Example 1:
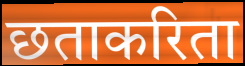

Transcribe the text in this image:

छताकरिता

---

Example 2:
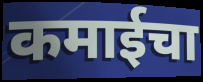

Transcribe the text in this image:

कमाईचा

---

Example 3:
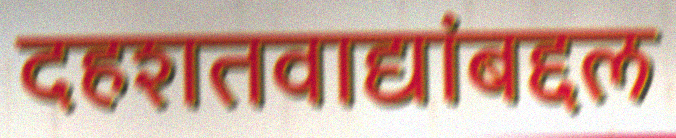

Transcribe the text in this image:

दहशतवाद्यांबद्दल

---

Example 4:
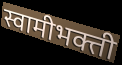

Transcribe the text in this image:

स्वामीभक्ती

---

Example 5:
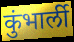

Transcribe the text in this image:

कुंभार्ली